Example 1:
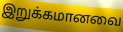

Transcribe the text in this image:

இறுக்கமானவை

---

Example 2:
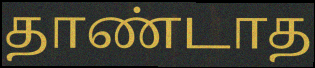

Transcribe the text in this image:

தாண்டாத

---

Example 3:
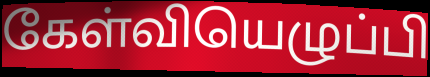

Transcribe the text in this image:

கேள்வியெழுப்பி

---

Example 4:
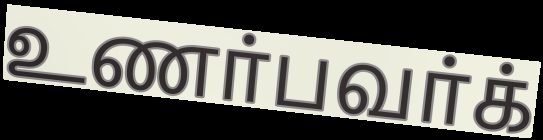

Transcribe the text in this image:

உணர்பவர்க்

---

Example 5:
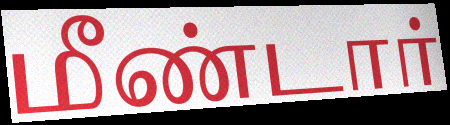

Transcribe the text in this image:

மீண்டார்